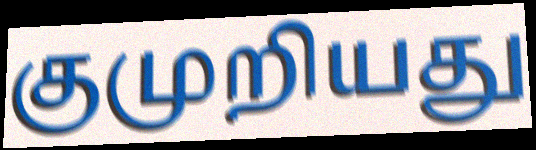
குமுறியது